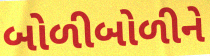
બોળીબોળીને